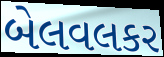
બેલવલકર